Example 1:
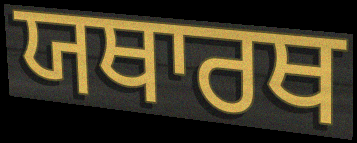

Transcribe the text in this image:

ਯਥਾਰਥ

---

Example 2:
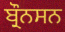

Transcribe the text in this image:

ਬ੍ਰੌਨਸਨ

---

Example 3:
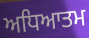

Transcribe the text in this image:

ਅਧਿਆਤਮ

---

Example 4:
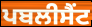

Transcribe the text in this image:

ਪਬਲੀਸੈਂਟ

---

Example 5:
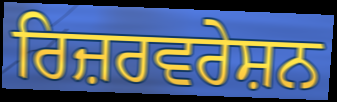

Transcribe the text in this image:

ਰਿਜ਼ਰਵਰੇਸ਼ਨ